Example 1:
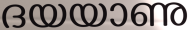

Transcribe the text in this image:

ദയയാണു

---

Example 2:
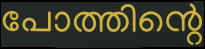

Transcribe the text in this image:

പോത്തിന്റെ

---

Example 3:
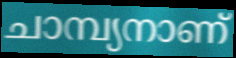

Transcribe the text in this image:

ചാമ്പ്യനാണ്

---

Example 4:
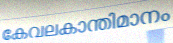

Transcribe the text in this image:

കേവലകാന്തിമാനം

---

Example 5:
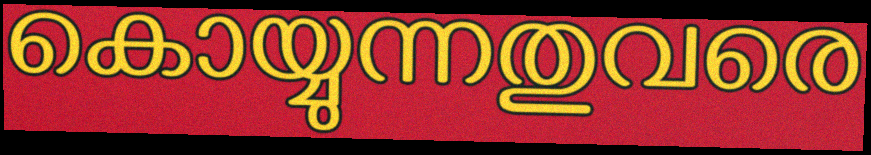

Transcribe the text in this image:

കൊയ്യുന്നതുവരെ